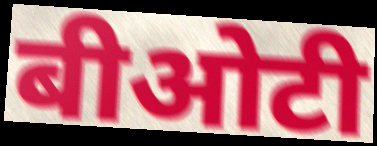
बीओटी